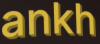
ankh